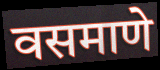
वसमाणे